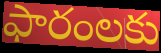
ఫారంలకు